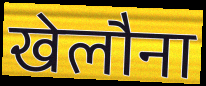
खेलौना